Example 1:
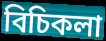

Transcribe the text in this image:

বিচিকলা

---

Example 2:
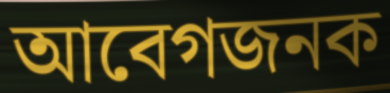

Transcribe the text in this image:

আবেগজনক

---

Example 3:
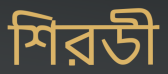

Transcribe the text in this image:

শিরডী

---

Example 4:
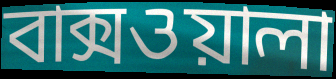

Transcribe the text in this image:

বাক্সওয়ালা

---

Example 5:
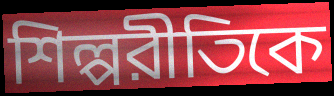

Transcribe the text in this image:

শিল্পরীতিকে